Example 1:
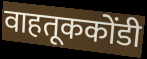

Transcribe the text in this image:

वाहतूककोंडी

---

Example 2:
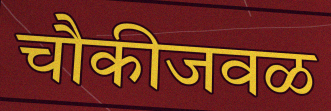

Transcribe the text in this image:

चौकीजवळ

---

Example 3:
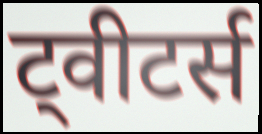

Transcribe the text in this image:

ट्वीटर्स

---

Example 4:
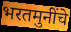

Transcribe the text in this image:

भरतमुनींचे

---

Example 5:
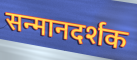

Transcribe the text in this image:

सन्मानदर्शक